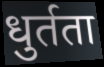
धुर्तता